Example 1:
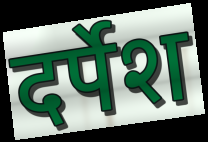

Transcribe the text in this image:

दर्पेश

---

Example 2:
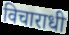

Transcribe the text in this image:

विचाराधी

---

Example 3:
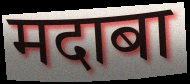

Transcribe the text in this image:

मदाबा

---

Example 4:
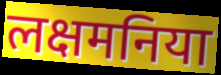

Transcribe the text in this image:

लक्षमनिया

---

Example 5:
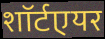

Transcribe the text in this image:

शॉर्टएयर